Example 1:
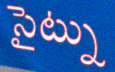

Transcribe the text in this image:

సైట్ను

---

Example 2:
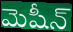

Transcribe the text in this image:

మెషీన్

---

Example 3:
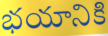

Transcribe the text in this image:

భయానికి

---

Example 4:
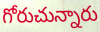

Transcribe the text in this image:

గోరుచున్నారు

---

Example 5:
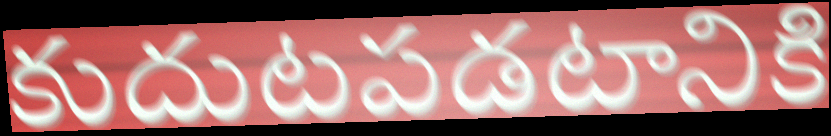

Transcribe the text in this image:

కుదుటపడటానికి